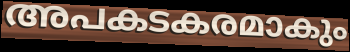
അപകടകരമാകും